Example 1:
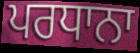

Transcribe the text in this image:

ਪਰਧਾਨਾ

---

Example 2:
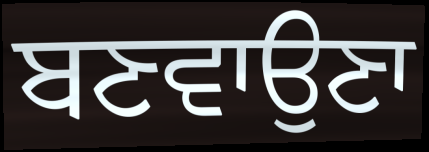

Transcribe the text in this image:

ਬਣਵਾਉਣਾ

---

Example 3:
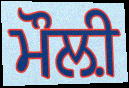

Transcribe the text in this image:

ਮੌਲ਼ੀ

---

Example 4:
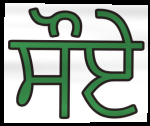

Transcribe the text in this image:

ਸੌਏ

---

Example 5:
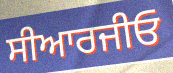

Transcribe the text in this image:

ਸੀਆਰਜੀਓ